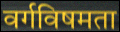
वर्गविषमता